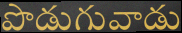
పొడుగువాడు